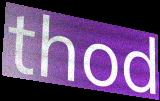
thod